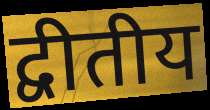
द्वीतीय